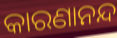
କାରଣାନନ୍ଦ